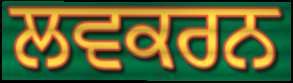
ਲਵਕਰਨ